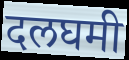
दलघमी